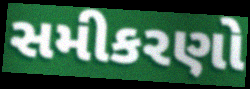
સમીકરણો